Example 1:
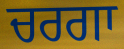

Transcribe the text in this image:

ਚਰਗਾ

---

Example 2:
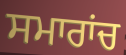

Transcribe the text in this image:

ਸਮਾਰਾਂਚ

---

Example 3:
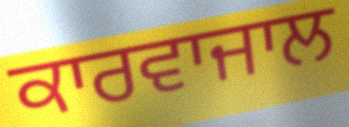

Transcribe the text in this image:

ਕਾਰਵਾਜਾਲ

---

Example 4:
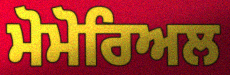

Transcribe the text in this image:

ਮੋਮੋਰਿਅਲ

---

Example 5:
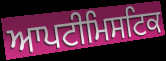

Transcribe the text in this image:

ਆਪਟੀਮਿਸਟਿਕ